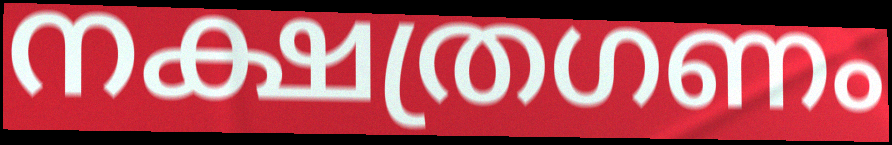
നക്ഷത്രഗണം